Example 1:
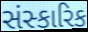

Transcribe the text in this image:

સંસ્કારિક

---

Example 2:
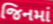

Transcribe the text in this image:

જિનમાં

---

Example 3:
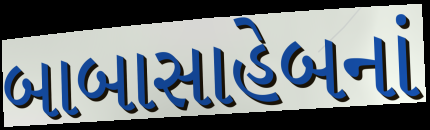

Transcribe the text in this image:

બાબાસાહેબનાં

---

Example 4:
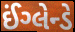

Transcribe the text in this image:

ઈંગ્લેન્ડે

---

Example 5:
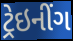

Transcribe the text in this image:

ટ્રેઇનીંગ